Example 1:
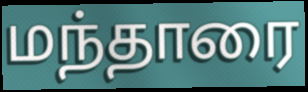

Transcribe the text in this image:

மந்தாரை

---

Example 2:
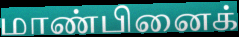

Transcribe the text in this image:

மாண்பினைக்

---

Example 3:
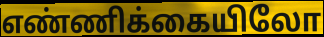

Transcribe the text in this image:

எண்ணிக்கையிலோ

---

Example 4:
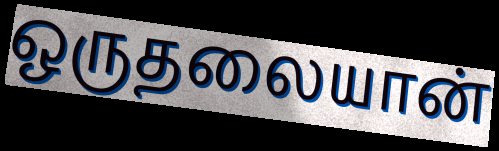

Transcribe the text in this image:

ஒருதலையான்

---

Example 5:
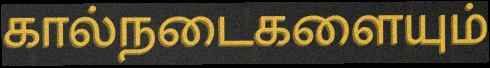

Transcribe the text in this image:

கால்நடைகளையும்